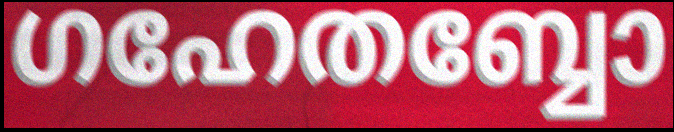
ഗഹേതബ്ബോ